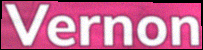
Vernon